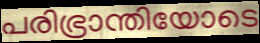
പരിഭ്രാന്തിയോടെ